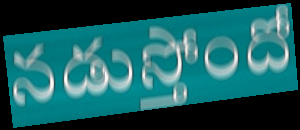
నడుస్తోందో